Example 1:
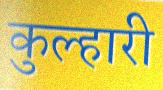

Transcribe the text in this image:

कुल्हारी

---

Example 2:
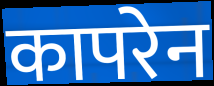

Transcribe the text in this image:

कापरेन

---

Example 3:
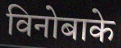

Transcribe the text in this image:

विनोबाके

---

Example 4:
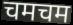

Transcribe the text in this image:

चमचम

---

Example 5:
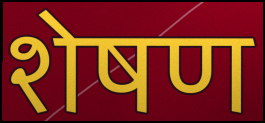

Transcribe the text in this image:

शेषण